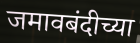
जमावबंदीच्या